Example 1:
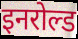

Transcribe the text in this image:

इनरोल्ड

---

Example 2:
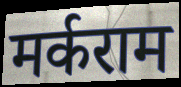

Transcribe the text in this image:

मर्कराम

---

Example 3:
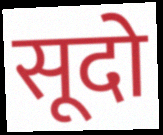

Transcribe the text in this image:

सूदो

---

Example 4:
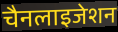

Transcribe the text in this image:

चैनलाइजेशन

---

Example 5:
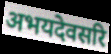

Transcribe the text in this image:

अभयदेवसरि